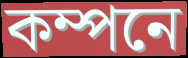
কম্পনে